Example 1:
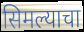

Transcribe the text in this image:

सिमल्याचा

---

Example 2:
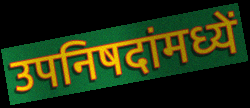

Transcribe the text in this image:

उपनिषदांमध्यें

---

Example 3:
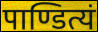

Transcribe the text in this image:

पाण्डित्यं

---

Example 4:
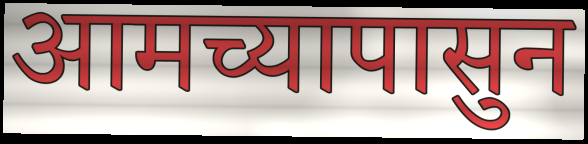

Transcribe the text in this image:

आमच्यापासुन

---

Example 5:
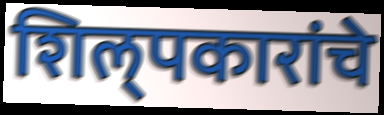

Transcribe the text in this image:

शिल्पकारांचे